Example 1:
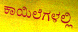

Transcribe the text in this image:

ಕಾಯಿಲೆಗಳಲ್ಲಿ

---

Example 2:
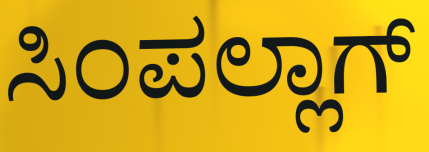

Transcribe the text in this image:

ಸಿಂಪಲ್ಲಾಗ್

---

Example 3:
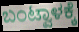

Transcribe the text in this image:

ಬಂಟ್ವಾಳಕ್ಕೆ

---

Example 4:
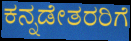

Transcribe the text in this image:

ಕನ್ನಡೇತರರಿಗೆ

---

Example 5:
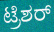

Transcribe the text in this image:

ಟ್ರೆಶರ್